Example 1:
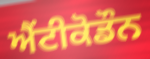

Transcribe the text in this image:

ਐਂਟੀਕੋਡੌਨ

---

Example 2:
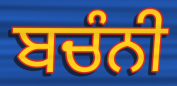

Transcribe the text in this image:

ਬਚੰਨੀ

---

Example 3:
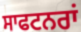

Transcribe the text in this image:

ਸਾਫਟਨਰਾਂ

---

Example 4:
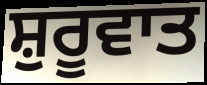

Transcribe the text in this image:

ਸ਼ੁਰੂਵਾਤ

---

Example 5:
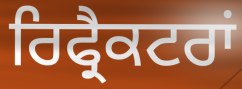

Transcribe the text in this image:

ਰਿਫ੍ਰੈਕਟਰਾਂ